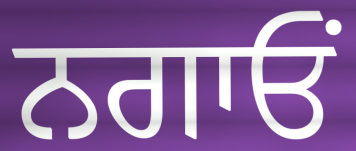
ਨਗਾਓਂ